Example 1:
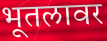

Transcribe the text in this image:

भूतलावर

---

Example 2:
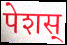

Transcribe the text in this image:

पेशस्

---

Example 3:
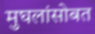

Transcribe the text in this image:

मुघलांसोबत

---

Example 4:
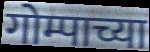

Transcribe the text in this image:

गोम्पाच्या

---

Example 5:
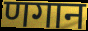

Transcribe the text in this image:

णगान